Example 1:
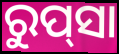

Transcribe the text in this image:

ରୁପ୍‍ସା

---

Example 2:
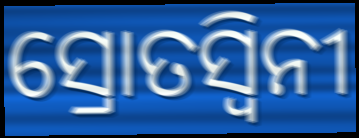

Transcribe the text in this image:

ସ୍ରୋତସ୍ୱିନୀ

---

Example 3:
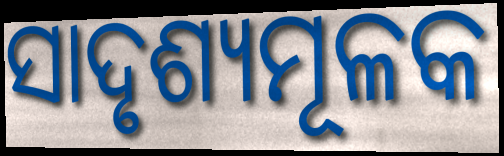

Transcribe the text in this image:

ସାଦୃଶ୍ୟମୂଳକ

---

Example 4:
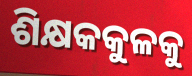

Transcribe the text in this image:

ଶିକ୍ଷକକୁଳକୁ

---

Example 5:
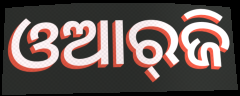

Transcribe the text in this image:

ଓଆର୍‌ଜି